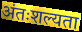
अंतःशल्यता